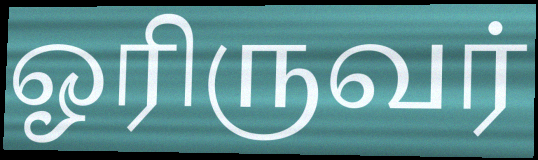
ஓரிருவர்